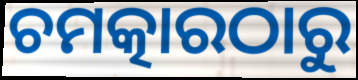
ଚମତ୍କାରଠାରୁ